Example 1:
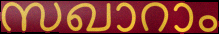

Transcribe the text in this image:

സഖാറാം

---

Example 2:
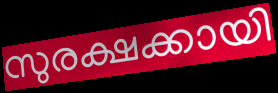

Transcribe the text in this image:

സുരക്ഷക്കായി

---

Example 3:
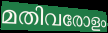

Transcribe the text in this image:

മതിവരോളം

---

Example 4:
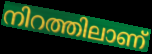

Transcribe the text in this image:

നിറത്തിലാണ്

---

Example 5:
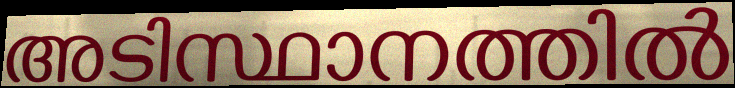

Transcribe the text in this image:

അടിസ്ഥാനത്തിൽ